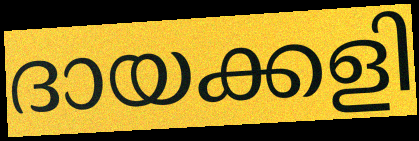
ദായക്കളി